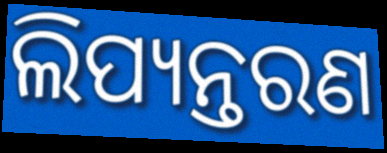
ଲିପ୍ୟନ୍ତରଣ